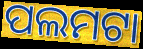
ପଲମଟା